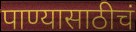
पाण्यासाठीचं